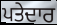
ਪਤੇਦਾਰ